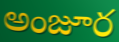
అంజూర